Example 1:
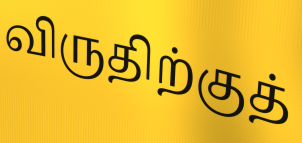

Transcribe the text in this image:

விருதிற்குத்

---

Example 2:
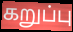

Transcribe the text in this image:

கறுப்பு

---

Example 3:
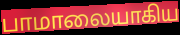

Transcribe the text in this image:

பாமாலையாகிய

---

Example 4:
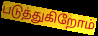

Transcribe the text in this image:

படுத்துகிறோம்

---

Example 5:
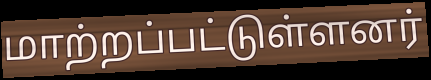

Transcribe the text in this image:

மாற்றப்பட்டுள்ளனர்